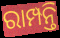
ରାମ୍ପନ୍ତି